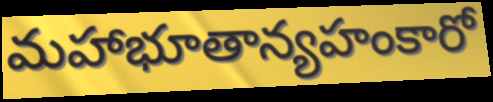
మహాభూతాన్యహంకారో